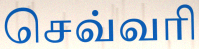
செவ்வரி